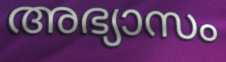
അഭ്യാസം